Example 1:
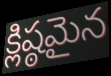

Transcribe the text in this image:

క్లిష్ఠమైన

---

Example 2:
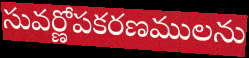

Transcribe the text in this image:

సువర్ణోపకరణములను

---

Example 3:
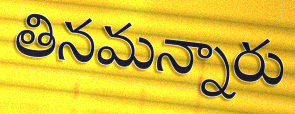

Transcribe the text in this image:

తినమన్నారు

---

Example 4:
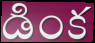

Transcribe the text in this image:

డింక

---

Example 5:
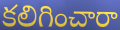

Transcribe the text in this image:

కలిగించారా